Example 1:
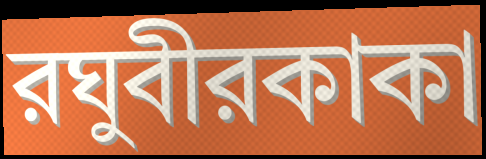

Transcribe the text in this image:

রঘুবীরকাকা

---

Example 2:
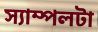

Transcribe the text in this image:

স্যাম্পলটা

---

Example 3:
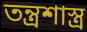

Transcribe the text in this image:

তন্ত্রশাস্ত্র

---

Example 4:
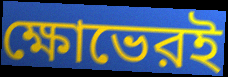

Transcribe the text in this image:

ক্ষোভেরই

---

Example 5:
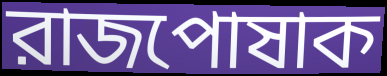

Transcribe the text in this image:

রাজপোষাক